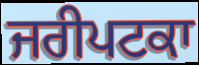
ਜਰੀਪਟਕਾ